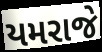
યમરાજે